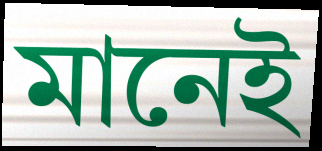
মানেই